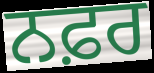
ਨਫ਼ਰ